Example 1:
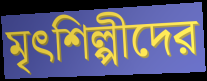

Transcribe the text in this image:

মৃৎশিল্পীদের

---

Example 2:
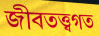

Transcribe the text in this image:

জীবতত্ত্বগত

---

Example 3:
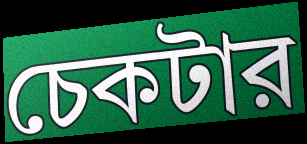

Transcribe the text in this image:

চেকটার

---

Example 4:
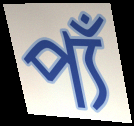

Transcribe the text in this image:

প্যঁ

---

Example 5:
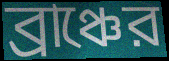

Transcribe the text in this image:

ব্রাঞ্চের